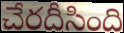
చేరదీసింది